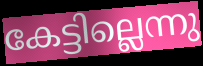
കേട്ടില്ലെന്നു